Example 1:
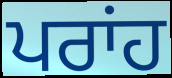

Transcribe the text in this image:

ਪਰਾਂਹ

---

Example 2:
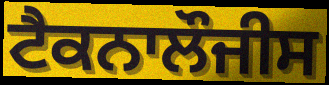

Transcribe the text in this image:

ਟੈਕਨਾਲੌਜੀਸ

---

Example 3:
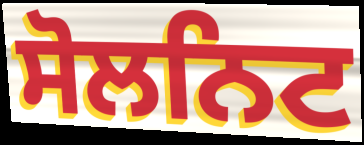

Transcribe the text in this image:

ਸੋਲਨਿਟ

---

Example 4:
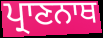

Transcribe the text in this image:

ਪ੍ਰਾਣਨਾਥ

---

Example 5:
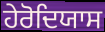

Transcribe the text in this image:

ਹੇਰੋਦਿਯਾਸ